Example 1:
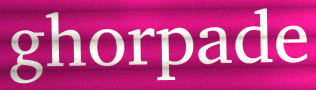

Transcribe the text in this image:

ghorpade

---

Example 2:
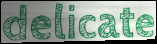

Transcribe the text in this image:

delicate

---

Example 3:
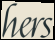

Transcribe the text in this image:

hers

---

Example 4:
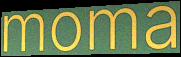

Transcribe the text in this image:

moma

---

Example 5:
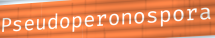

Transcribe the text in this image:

Pseudoperonospora